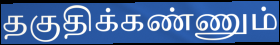
தகுதிக்கண்ணும்